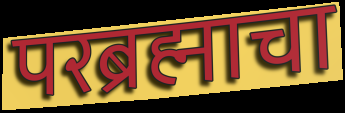
परब्रह्माचा